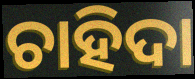
ଚାହିଦା